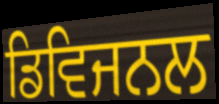
ਡਿਵਿਜਨਲ